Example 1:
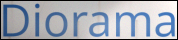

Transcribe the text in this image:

Diorama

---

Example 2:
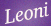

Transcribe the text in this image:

Leoni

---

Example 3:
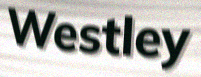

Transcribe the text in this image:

Westley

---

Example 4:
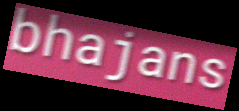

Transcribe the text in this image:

bhajans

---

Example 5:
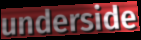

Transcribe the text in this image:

underside